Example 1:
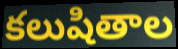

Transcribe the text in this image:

కలుషితాల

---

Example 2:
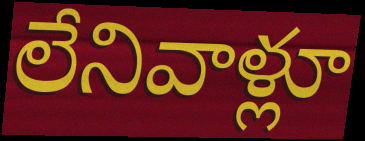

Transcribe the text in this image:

లేనివాళ్లూ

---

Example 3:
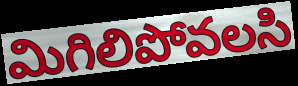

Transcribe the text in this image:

మిగిలిపోవలసి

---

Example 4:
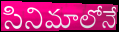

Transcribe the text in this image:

సినిమాలోనే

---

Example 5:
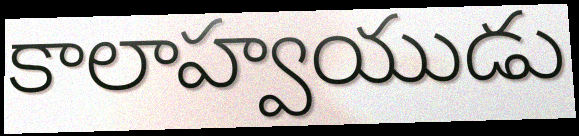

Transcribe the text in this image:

కాలాహ్వయుడు